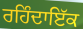
ਰਹਿੰਦਾਇੱਕ